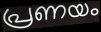
പ്രണയം